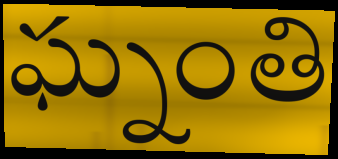
ఘ్నంతి